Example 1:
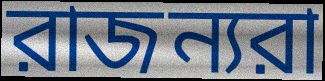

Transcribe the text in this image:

রাজন্যরা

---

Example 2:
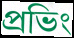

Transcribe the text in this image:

প্রভিং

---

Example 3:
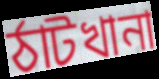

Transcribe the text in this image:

ঠাটখানা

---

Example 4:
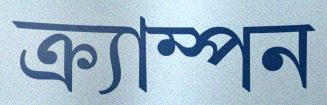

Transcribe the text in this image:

ক্র্যাম্পন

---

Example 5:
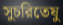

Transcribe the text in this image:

সুচরিতেষু